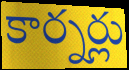
కార్నర్లు